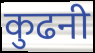
कुढनी